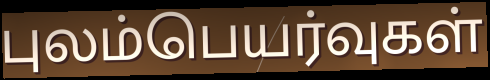
புலம்பெயர்வுகள்